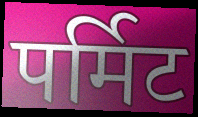
पर्मिट